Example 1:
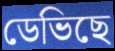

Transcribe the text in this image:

ডেভিছে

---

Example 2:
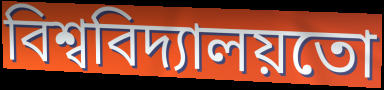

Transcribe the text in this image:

বিশ্ববিদ্যালয়তো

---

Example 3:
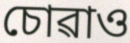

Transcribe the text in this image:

চোৱাও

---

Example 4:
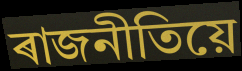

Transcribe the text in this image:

ৰাজনীতিয়ে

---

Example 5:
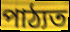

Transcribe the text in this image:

পাঠ্যত